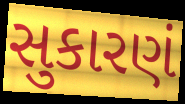
સુકારણં